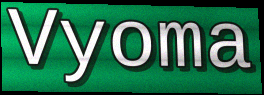
Vyoma